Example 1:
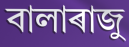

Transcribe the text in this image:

বালাৰাজু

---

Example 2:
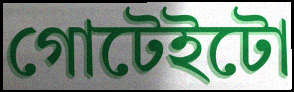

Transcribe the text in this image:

গোটেইটো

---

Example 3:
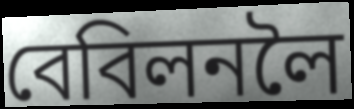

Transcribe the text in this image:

বেবিলনলৈ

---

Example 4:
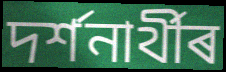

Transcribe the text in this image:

দৰ্শনাৰ্থীৰ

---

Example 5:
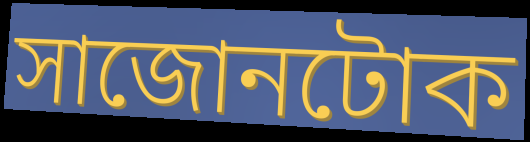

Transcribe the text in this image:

সাজোনটোক